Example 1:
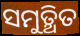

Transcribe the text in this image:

ସମୁତ୍ଥିତ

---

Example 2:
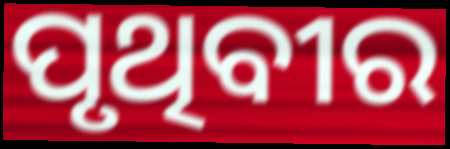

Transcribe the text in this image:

ପୃଥିବୀର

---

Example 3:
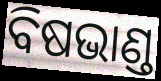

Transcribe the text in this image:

ବିଷଭାଣ୍ଡ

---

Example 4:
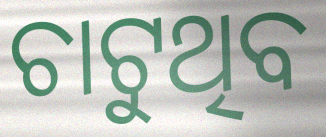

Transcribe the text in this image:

ଚାଟୁଥିବ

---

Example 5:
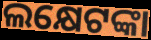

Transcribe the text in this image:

ଲକ୍ଷେଟଙ୍କା